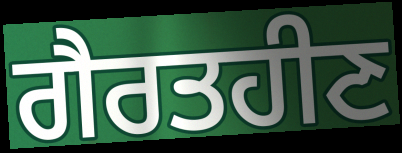
ਗੈਰਤਹੀਣ